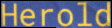
Herold